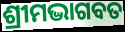
ଶ୍ରୀମଦ୍ଭାଗବତ